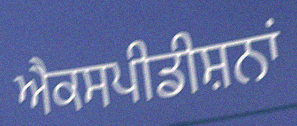
ਐਕਸਪੀਡੀਸ਼ਨਾਂ